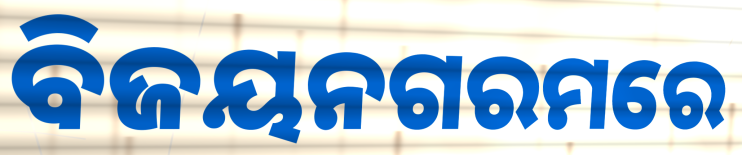
ବିଜୟନଗରମରେ